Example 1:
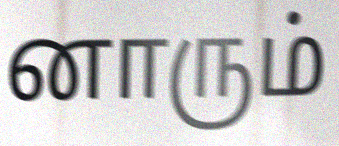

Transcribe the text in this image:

னாரும்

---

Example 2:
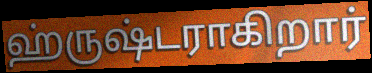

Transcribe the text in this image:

ஹ்ருஷ்டராகிறார்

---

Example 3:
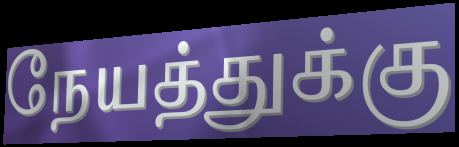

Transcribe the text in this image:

நேயத்துக்கு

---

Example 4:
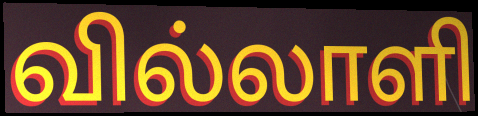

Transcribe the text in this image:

வில்லாளி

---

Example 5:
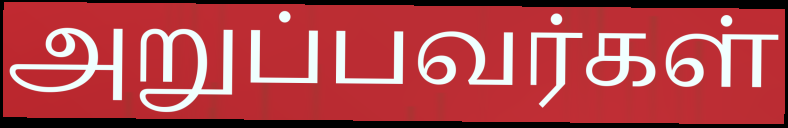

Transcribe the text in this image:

அறுப்பவர்கள்